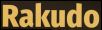
Rakudo